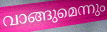
വാങ്ങുമെന്നും